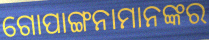
ଗୋପାଙ୍ଗନାମାନଙ୍କର